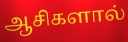
ஆசிகளால்